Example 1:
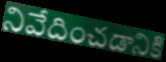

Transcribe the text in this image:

నివేదించడానికి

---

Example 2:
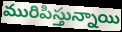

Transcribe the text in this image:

మురిపిస్తున్నాయి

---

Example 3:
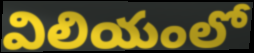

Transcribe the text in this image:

విలియంలో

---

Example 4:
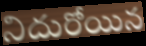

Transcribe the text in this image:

నిదురోయిన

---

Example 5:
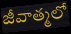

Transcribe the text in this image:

జీవాత్మలో